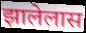
झालेलास